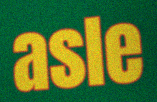
asle